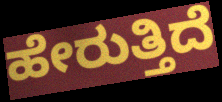
ಹೇರುತ್ತಿದೆ